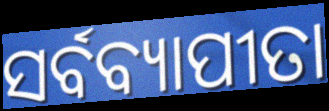
ସର୍ବବ୍ୟାପୀତା